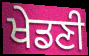
ਖੇਡਣੀ